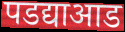
पडद्याआड